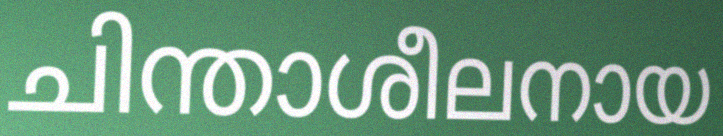
ചിന്താശീലനായ